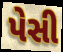
પેસી